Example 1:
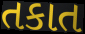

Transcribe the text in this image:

તકાત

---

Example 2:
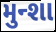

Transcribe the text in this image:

મુન્શા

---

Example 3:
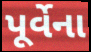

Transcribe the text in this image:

પૂર્વેના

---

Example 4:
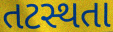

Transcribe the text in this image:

તટસ્થતા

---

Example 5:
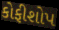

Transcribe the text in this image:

કોફીશોપ